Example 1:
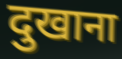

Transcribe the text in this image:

दुखाना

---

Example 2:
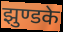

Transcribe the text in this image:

झुण्डके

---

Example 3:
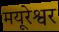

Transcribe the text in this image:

मयूरेश्वर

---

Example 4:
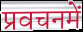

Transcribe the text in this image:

प्रवचनमें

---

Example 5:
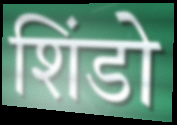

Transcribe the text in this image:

शिंडो